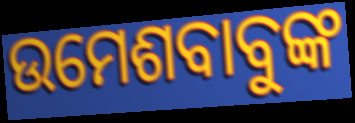
ଉମେଶବାବୁଙ୍କ